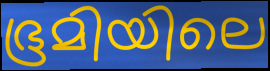
ഭൂമിയിലെ